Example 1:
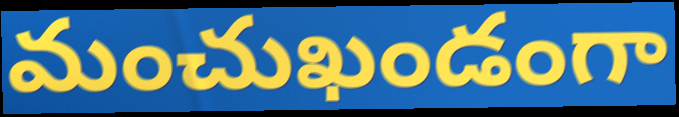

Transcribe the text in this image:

మంచుఖండంగా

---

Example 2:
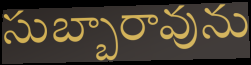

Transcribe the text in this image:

సుబ్బారావును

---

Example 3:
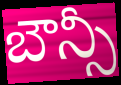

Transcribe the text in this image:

బౌన్సీ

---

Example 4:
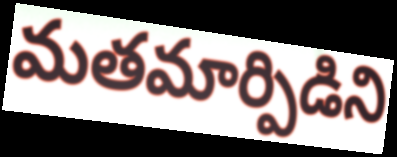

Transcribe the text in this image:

మతమార్పిడిని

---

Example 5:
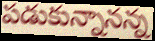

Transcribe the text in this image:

పడుకున్నానన్న